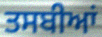
ਤਸਬੀਆਂ